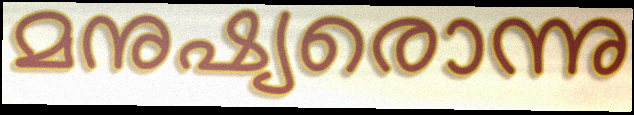
മനുഷ്യരൊന്നു